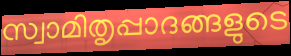
സ്വാമിതൃപ്പാദങ്ങളുടെ